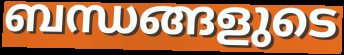
ബന്ധങ്ങളുടെ